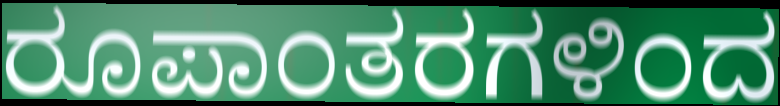
ರೂಪಾಂತರಗಳಿಂದ